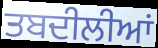
ਤਬਦੀਲੀਆਂ